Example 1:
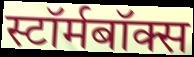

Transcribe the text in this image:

स्टॉर्मबॉक्स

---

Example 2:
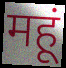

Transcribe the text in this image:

महूं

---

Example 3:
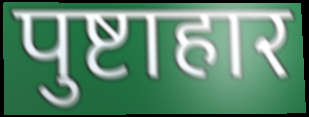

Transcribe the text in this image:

पुष्टाहार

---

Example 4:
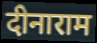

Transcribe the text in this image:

दीनाराम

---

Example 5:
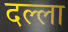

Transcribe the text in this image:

दल्ला